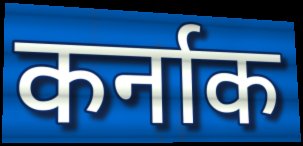
कर्नाक